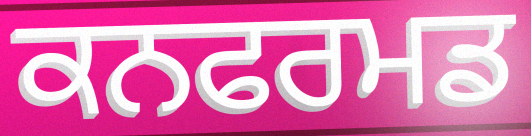
ਕਨਫਰਮਡ